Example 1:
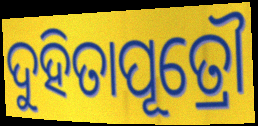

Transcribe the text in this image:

ଦୁହିତାପୂତ୍ରୌ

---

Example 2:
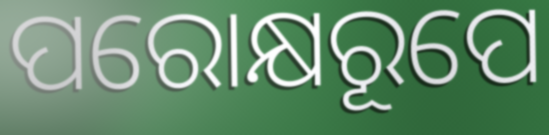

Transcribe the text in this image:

ପରୋକ୍ଷରୂପେ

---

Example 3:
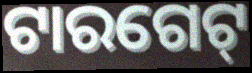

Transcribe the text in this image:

ଟାରଗେଟ୍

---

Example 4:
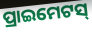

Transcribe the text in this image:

ପ୍ରାଇମେଟସ୍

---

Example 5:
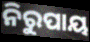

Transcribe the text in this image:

ନିରୁପାୟ